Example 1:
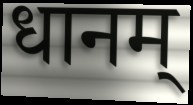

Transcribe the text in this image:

धानम्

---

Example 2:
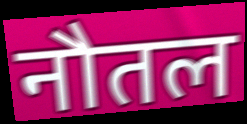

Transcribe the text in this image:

नौतल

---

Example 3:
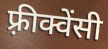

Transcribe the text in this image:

फ़्रीक्वेंसी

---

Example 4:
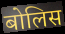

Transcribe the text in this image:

बोलिस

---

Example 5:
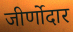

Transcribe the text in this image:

जीर्णोदार